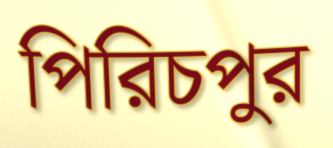
পিরিচপুর